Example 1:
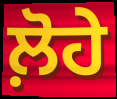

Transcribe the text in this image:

ਲ਼ੋਹੇ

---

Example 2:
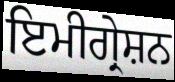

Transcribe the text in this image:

ਇਮੀਗ੍ਰੇਸ਼ਨ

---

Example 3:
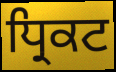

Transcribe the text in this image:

ਧ੍ਰਿਕਟ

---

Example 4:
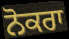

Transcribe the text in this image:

ਨੋਕਰਾ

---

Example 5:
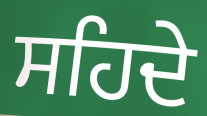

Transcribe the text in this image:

ਸਹਿਦੇ